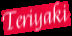
Teriyaki